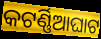
କଟର୍ଣ୍ଣିଆଘାଟ